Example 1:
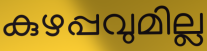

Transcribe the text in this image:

കുഴപ്പവുമില്ല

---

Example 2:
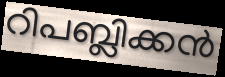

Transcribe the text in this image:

റിപബ്ലിക്കൻ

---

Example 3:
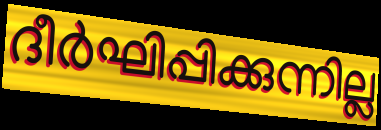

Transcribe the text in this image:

ദീർഘിപ്പിക്കുന്നില്ല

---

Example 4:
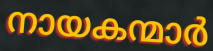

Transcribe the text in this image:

നായകന്മാർ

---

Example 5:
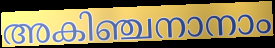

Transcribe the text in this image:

അകിഞ്ചനാനാം